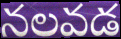
నలవడ